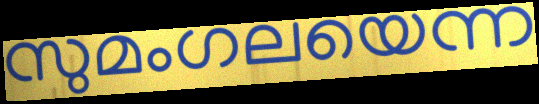
സുമംഗലയെന്ന